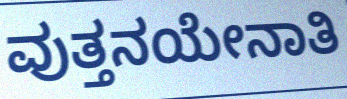
ವುತ್ತನಯೇನಾತಿ